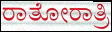
ರಾತೋರಾತ್ರಿ